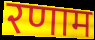
रणाम